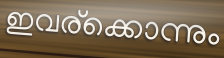
ഇവര്ക്കൊന്നും